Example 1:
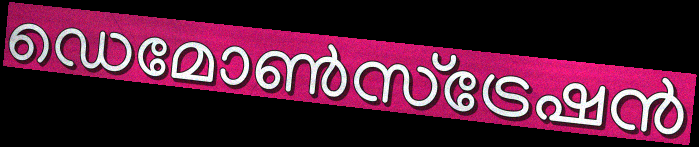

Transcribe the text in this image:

ഡെമോൺസ്ട്രേഷൻ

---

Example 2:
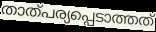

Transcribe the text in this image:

താത്പര്യപ്പെടാത്തത്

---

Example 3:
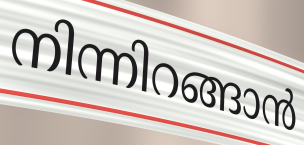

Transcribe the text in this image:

നിന്നിറങ്ങാൻ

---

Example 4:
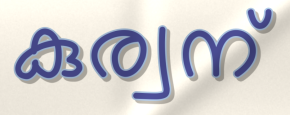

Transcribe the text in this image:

കുര്വന്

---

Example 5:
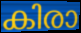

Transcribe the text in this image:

കിരാ